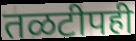
तळटीपही